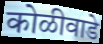
कोळीवाडे